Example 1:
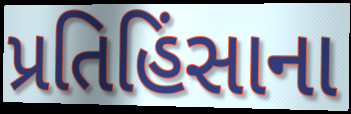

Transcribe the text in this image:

પ્રતિહિંસાના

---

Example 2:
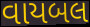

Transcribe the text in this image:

વાયબલ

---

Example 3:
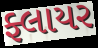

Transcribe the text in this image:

ફ્લાયર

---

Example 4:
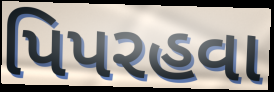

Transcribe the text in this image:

પિપરહવા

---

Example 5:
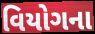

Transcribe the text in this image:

વિયોગના